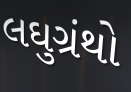
લઘુગ્રંથો